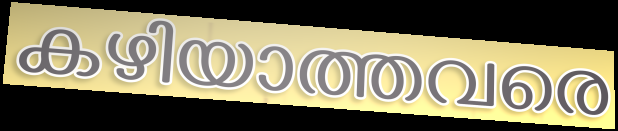
കഴിയാത്തവരെ